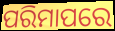
ପରିମାପରେ